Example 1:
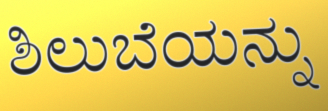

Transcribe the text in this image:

ಶಿಲುಬೆಯನ್ನು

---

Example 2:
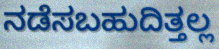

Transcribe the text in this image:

ನಡೆಸಬಹುದಿತ್ತಲ್ಲ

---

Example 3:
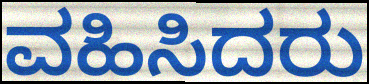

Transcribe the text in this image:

ವಹಿಸಿದರು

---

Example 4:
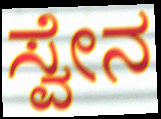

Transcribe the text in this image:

ಸ್ವೇನ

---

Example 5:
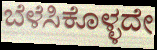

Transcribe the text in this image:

ಬೆಳೆಸಿಕೊಳ್ಳದೇ